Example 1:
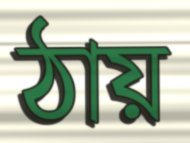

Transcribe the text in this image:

ঠায়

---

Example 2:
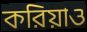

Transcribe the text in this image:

করিয়াও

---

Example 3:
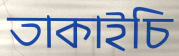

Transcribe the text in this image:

তাকাইচি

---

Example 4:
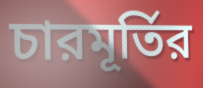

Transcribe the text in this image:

চারমূর্তির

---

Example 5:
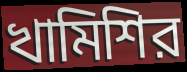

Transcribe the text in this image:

খামিশির